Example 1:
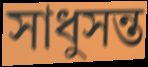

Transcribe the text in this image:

সাধুসন্ত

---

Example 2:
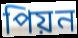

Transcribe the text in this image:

পিয়ন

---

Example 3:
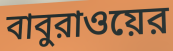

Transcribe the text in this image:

বাবুরাওয়ের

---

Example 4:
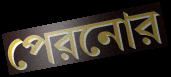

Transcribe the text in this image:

পেরনোর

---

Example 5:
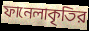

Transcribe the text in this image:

ফানেলাকৃতির